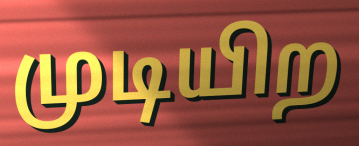
முடியிற